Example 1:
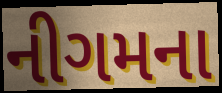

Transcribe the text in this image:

નીગમના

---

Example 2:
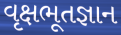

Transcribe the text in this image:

વૃક્ષભૂતજ્ઞાન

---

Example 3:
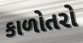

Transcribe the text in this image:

કાળોતરો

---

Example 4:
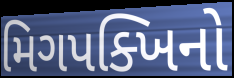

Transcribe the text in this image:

મિગપક્ખિનો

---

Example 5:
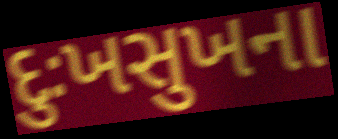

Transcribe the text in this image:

દુઃખસુખના